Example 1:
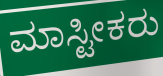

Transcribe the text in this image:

ಮಾಸ್ಟೀಕರು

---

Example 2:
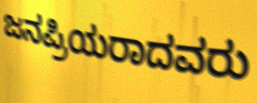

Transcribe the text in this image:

ಜನಪ್ರಿಯರಾದವರು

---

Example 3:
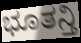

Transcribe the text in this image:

ಭೂತನ್ತಿ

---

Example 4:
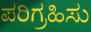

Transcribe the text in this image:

ಪರಿಗ್ರಹಿಸು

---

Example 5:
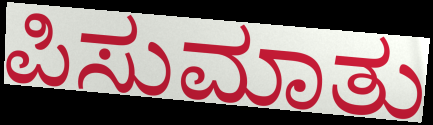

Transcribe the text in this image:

ಪಿಸುಮಾತು